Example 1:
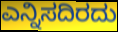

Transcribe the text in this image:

ಎನ್ನಿಸದಿರದು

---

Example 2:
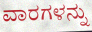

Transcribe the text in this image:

ವಾರಗಳನ್ನು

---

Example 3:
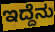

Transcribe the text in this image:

ಇದ್ದೆನು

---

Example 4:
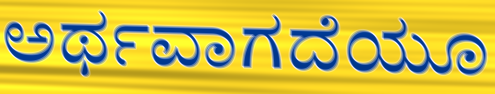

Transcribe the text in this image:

ಅರ್ಥವಾಗದೆಯೂ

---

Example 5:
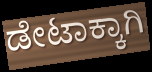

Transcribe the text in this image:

ಡೇಟಾಕ್ಕಾಗಿ